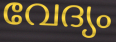
വേദ്യം